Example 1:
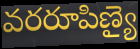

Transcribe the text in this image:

వరరూపిణ్యై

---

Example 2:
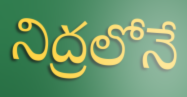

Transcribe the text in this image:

నిద్రలోనే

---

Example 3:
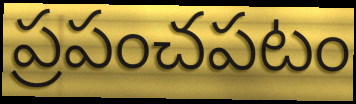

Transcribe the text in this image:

ప్రపంచపటం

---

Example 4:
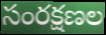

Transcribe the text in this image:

సంరక్షణల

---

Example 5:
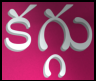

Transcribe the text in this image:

కగ్గు